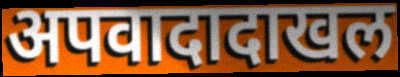
अपवादादाखल